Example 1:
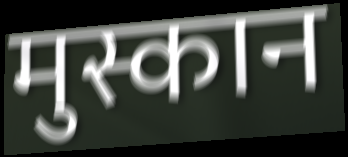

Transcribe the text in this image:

मुस्‍कान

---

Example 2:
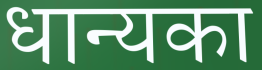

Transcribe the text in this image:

धान्यका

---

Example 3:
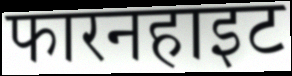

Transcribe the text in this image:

फारनहाइट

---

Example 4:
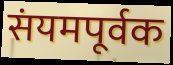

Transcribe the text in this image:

संयमपूर्वक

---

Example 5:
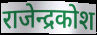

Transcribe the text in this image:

राजेन्द्रकोश